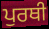
ਪੁਰਥੀ